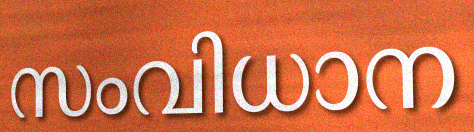
സംവിധാന